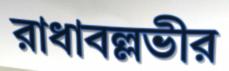
রাধাবল্লভীর